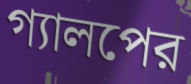
গ্যালপের